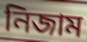
নিজাম